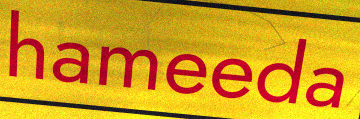
hameeda